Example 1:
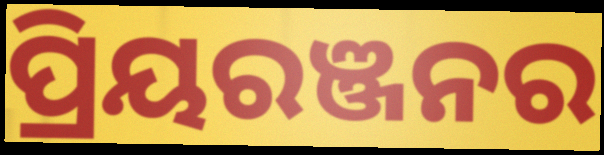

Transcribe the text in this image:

ପ୍ରିୟରଞ୍ଜନର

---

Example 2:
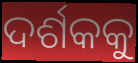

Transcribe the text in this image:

ଦର୍ଶକକୁ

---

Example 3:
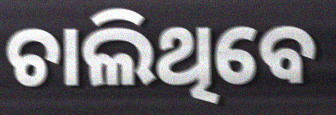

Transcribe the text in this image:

ଚାଲିଥିବେ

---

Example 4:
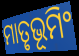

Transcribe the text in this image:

ମାତୃଭୂମିଂ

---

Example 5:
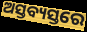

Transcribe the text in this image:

ଅସ୍ତବ୍ୟସ୍ତରେ